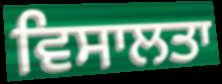
ਵਿਸਾਲਤਾ